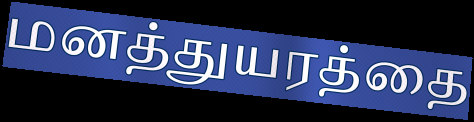
மனத்துயரத்தை